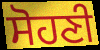
ਸੋਹਣੀ